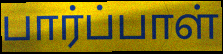
பார்ப்பாள்